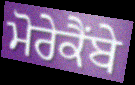
ਮੋਰੇਕੈਂਬੇ